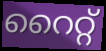
റൈറ്റ്